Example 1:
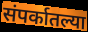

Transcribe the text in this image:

संपर्कातल्या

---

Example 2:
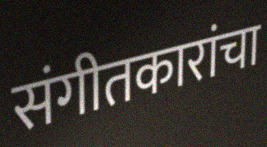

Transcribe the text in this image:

संगीतकारांचा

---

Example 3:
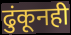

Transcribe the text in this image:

ढुंकूनही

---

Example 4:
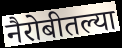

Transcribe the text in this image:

नैरोबीतल्या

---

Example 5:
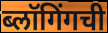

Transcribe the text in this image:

ब्लॉगिंगची